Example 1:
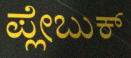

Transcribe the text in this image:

ಪ್ಲೇಬುಕ್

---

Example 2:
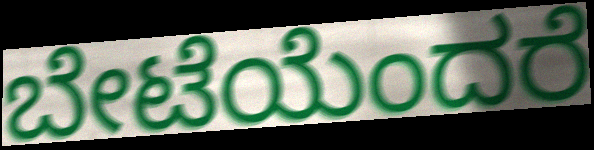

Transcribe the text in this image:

ಬೇಟೆಯೆಂದರೆ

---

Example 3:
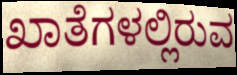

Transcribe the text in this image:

ಖಾತೆಗಳಲ್ಲಿರುವ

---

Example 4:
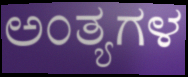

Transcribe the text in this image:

ಅಂತ್ಯಗಳ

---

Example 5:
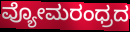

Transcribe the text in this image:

ವ್ಯೋಮರಂಧ್ರದ